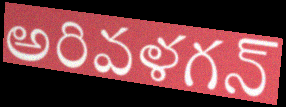
అరివళగన్